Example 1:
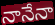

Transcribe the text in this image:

నానేనా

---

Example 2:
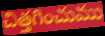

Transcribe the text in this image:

చిత్తగించుము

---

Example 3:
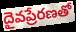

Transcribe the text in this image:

దైవప్రేరణతో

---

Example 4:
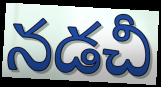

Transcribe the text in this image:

నడచీ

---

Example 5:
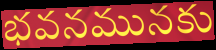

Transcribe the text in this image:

భవనమునకు